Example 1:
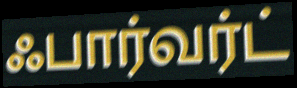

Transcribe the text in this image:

ஃபார்வர்ட்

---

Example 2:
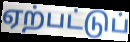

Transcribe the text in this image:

ஏற்பட்டுப்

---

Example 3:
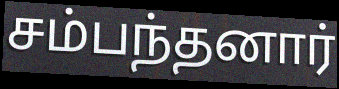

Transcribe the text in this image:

சம்பந்தனார்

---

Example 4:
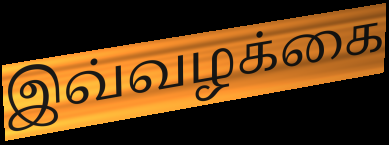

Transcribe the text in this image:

இவ்வழக்கை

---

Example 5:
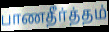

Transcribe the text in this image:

பாணதீர்த்தம்